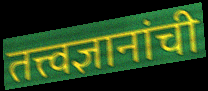
तत्त्वज्ञानांची